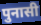
पुनासी